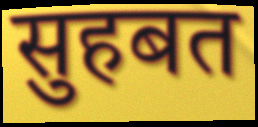
सुहबत